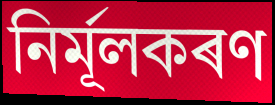
নিৰ্মূলকৰণ